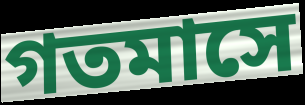
গতমাসে